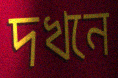
দখনে